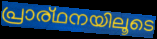
പ്രാര്ഥനയിലൂടെ